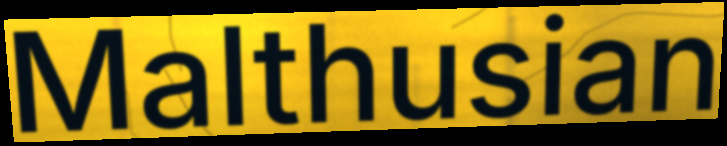
Malthusian